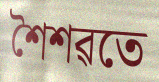
শৈশৱতে